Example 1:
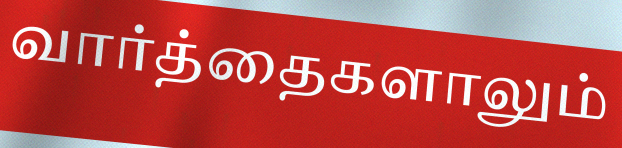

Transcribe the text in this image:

வார்த்தைகளாலும்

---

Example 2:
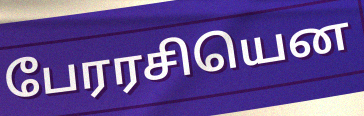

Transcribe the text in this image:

பேரரசியென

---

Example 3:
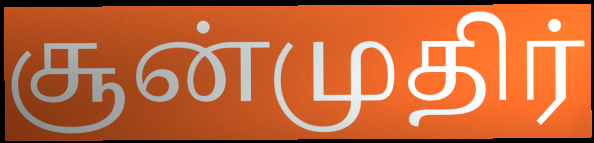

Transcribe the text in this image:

சூன்முதிர்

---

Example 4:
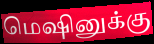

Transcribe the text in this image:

மெஷினுக்கு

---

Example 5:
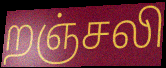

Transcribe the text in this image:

றஞ்சலி